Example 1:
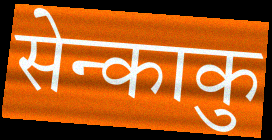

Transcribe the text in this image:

सेन्काकु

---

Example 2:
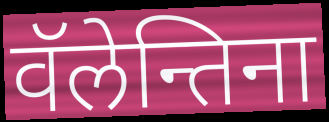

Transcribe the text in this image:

वॅलेन्तिना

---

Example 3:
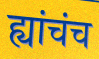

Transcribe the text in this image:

ह्यांचंच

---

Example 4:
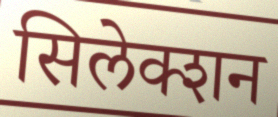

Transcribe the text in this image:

सिलेक्शन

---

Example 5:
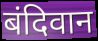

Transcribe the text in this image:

बंदिवान